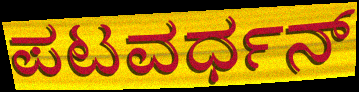
ಪಟವರ್ಧನ್